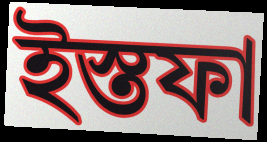
ইস্তফা